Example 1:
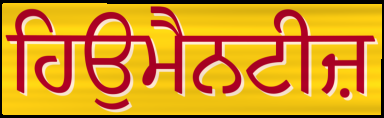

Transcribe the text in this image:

ਹਿਉਮੈਨਟੀਜ਼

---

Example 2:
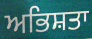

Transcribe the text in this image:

ਅਭਿਸ਼ਤਾ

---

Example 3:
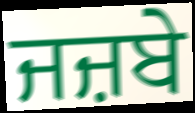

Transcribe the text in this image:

ਜਜ਼ਬੇ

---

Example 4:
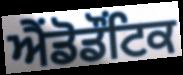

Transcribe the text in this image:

ਐਂਡੋਡੌਂਟਿਕ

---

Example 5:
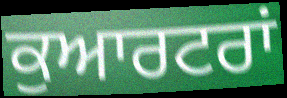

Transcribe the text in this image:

ਕੁਆਰਟਰਾਂ